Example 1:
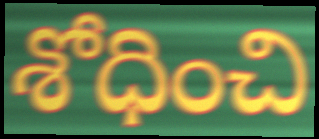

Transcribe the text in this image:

శోధించి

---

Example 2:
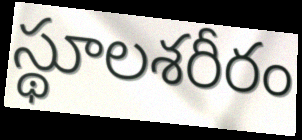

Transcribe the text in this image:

స్థూలశరీరం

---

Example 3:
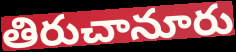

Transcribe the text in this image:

తిరుచానూరు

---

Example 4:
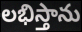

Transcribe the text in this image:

లభిస్తాను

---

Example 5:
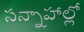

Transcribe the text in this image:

సన్నాహాల్లో